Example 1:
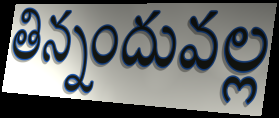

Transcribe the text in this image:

తిన్నందువల్ల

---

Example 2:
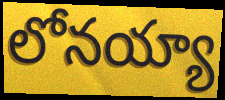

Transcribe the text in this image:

లోనయ్యా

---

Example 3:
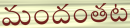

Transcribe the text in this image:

మందంతట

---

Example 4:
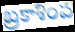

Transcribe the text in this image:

బ్రకాశింప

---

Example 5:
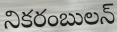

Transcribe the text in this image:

నికరంబులన్